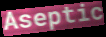
Aseptic